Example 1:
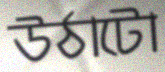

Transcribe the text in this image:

উঠাটো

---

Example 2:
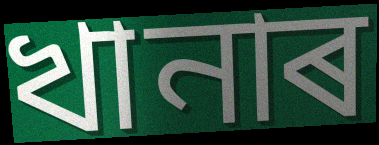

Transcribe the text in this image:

খানাৰ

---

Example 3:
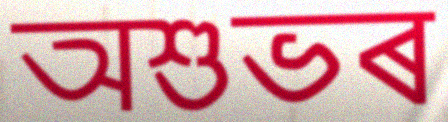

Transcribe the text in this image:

অশুভৰ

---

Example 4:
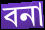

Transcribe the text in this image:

বনা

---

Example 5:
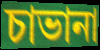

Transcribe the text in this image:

চাভানা